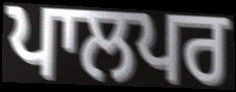
ਪਾਲਪਰ